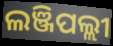
ଲଞ୍ଜିପଲ୍ଲୀ